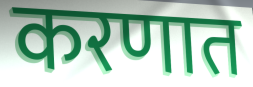
करणात